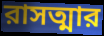
রাসত্মার